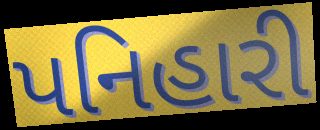
પનિહારી